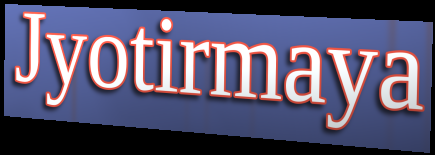
Jyotirmaya